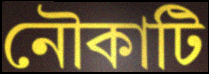
নৌকাটি